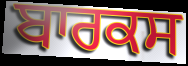
ਬਾਰਕਸ